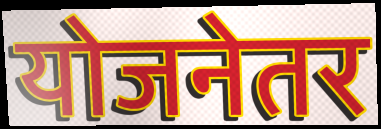
योजनेतर